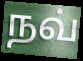
நவ்